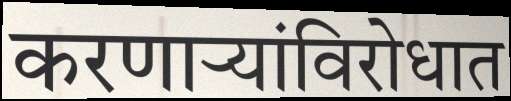
करणाऱ्यांविरोधात